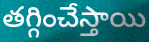
తగ్గించేస్తాయి